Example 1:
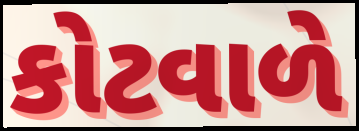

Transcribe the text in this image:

કોટવાળે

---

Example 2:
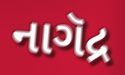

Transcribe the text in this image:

નાગૅદ્ર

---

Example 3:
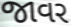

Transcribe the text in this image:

જાવર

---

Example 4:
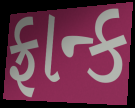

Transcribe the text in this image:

ફ્રાન્ક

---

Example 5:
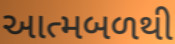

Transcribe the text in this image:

આત્મબળથી